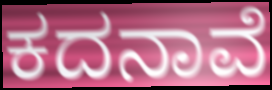
ಕದನಾವೆ